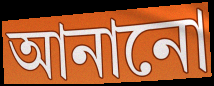
আনানো